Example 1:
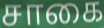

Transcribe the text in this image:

சாகை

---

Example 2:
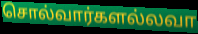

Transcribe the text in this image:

சொல்வார்களல்லவா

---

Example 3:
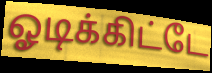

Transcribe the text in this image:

ஓடிக்கிட்டே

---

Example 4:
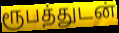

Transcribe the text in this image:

ரூபத்துடன்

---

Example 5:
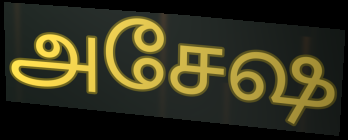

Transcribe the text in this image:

அசேஷ